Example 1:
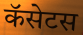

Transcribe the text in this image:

कॅसेटस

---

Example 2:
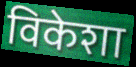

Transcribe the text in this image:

विकेशा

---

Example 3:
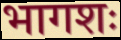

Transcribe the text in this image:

भागशः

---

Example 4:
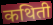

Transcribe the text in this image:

कथिती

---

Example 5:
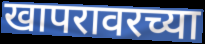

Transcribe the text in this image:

खापरावरच्या